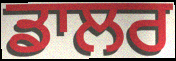
ਡਾਲਰ